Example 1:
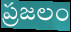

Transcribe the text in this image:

ప్రజలం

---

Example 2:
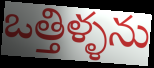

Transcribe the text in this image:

ఒత్తిళ్ళను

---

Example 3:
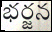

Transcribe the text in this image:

భర్జన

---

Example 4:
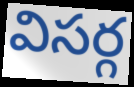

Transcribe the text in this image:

విసర్గ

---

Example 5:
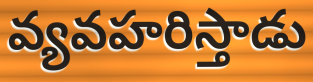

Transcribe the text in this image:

వ్యవహరిస్తాడు